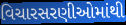
વિચારસરણીઓમાંથી